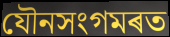
যৌনসংগমৰত